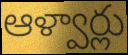
ఆళ్వార్లు